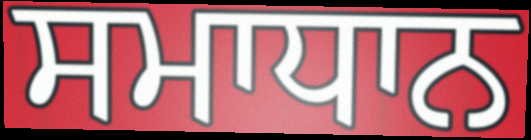
ਸਮਾਧਾਨ